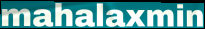
mahalaxmin